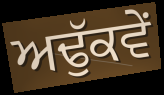
ਅਢੁੱਕਵੇਂ